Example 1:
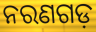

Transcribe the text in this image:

ନରଣଗଡ଼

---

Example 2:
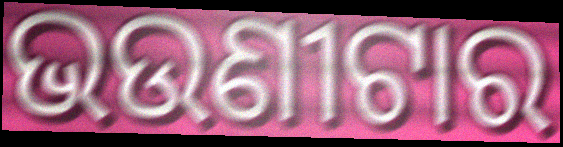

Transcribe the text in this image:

ଭଉଣୀଟାର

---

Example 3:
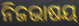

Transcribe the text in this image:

ନିଜଭାଷୟ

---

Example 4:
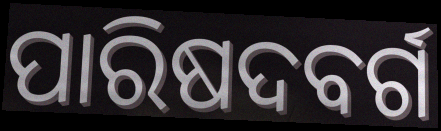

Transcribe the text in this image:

ପାରିଷଦବର୍ଗ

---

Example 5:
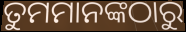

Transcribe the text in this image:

ତୁମମାନଙ୍କଠାରୁ